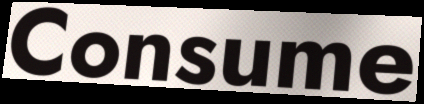
Consume